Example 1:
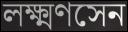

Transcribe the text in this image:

লক্ষ্মণসেন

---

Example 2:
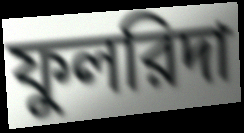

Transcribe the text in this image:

ফুলরিদা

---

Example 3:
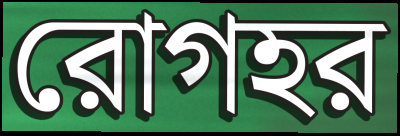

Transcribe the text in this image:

রোগহর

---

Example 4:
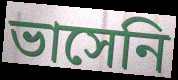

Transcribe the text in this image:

ভাসেনি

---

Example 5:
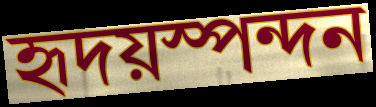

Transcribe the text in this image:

হৃদয়স্পন্দন